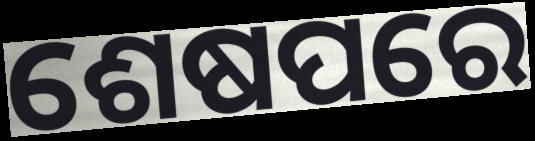
ଶେଷପରେ